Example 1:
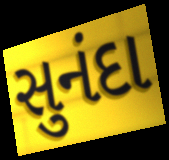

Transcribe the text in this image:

સુનંદા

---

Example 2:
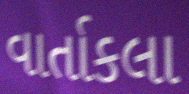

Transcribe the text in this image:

વાર્તાકલા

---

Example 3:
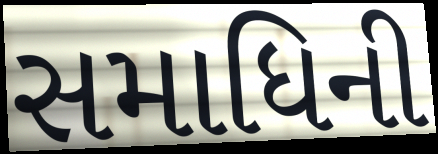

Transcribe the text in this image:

સમાધિની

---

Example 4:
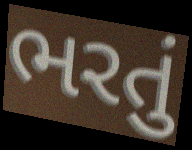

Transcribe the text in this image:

ભરતું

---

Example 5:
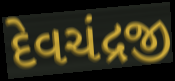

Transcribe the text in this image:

દેવચંદ્રજી